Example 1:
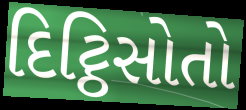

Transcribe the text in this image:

દિટ્ઠિસોતો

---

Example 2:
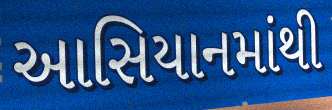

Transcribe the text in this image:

આસિયાનમાંથી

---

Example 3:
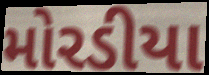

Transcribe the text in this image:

મોરડીયા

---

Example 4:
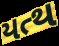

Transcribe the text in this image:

યત્થ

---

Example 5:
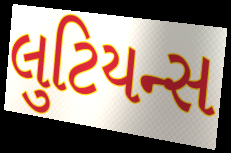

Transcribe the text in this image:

લુટિયન્સ